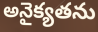
అనైక్యతను